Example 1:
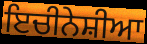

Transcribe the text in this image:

ਇਚੀਨੇਸ਼ੀਆ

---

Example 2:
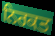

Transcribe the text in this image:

ਨਿਰਕਤ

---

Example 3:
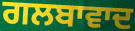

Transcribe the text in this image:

ਗਲਬਾਵਾਦ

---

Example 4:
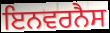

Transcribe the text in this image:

ਇਨਵਰਨੈਸ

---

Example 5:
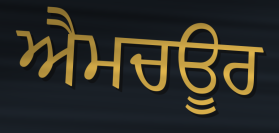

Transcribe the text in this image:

ਐਮਚਊਰ